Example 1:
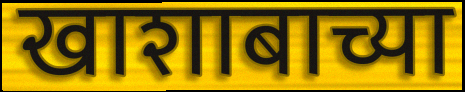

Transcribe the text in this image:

खाशाबाच्या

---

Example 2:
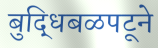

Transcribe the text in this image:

बुद्धिबळपटूने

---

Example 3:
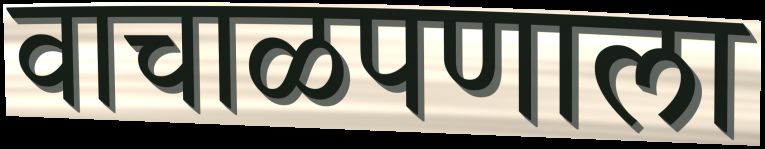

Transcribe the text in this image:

वाचाळपणाला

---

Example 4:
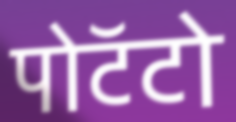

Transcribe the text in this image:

पोटॅटो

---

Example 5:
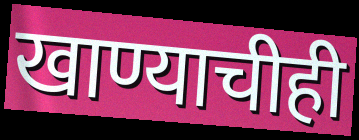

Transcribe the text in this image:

खाण्याचीही